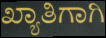
ಖ್ಯಾತಿಗಾಗಿ